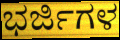
ಭರ್ಜಿಗಳ